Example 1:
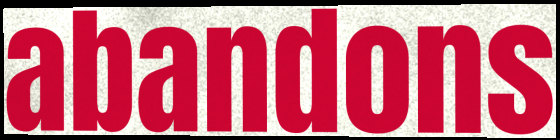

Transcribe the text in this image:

abandons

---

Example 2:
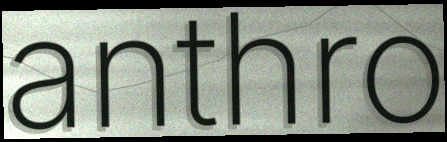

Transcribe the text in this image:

anthro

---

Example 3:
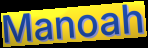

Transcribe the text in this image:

Manoah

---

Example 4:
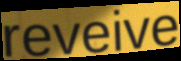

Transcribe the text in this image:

reveive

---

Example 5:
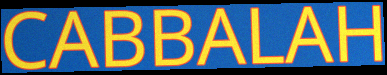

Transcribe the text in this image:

CABBALAH